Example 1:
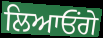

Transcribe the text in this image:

ਲਿਆਓਂਗੇ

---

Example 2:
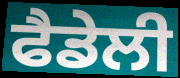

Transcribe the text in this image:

ਫੈਡੇਲੀ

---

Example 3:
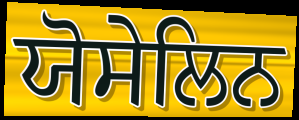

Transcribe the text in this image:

ਯੋਸੇਲਿਨ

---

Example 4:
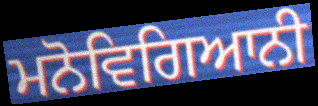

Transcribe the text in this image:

ਮਨੋਵਿਗਿਆਨੀ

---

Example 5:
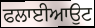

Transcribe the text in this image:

ਫਲਾਈਆਉਟ